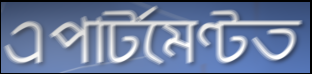
এপাৰ্টমেণ্টত